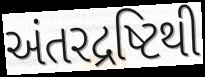
અંતરદ્રષ્ટિથી